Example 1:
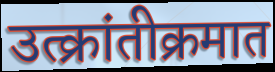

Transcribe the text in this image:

उत्क्रांतीक्रमात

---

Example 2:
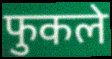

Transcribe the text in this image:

फुकले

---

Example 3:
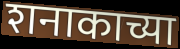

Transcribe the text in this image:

शनाकाच्या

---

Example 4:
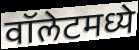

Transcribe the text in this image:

वॉलेटमध्ये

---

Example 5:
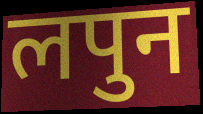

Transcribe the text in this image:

लपुन